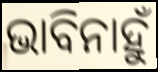
ଭାବିନାହୁଁ